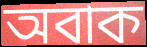
অবাক